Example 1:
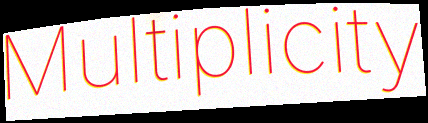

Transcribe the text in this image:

Multiplicity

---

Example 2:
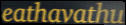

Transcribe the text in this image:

eathavathu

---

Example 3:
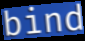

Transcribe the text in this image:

bind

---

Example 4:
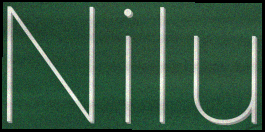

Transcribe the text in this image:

Nilu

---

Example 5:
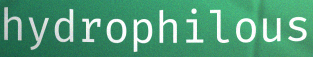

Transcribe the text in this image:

hydrophilous